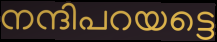
നന്ദിപറയട്ടെ